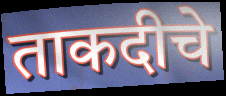
ताकदीचे